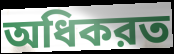
অধিকরত